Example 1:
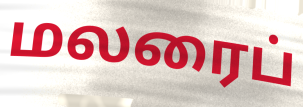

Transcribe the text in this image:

மலரைப்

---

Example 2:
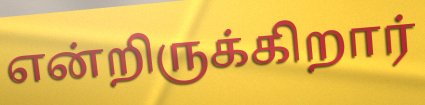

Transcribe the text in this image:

என்றிருக்கிறார்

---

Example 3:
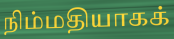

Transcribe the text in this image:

நிம்மதியாகக்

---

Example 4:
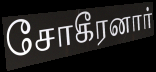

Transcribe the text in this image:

சோகீரனார்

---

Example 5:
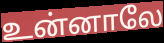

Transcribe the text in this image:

உன்னாலே